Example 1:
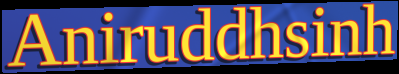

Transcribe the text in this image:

Aniruddhsinh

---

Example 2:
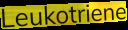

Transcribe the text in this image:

Leukotriene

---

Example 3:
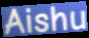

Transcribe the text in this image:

Aishu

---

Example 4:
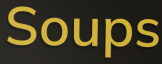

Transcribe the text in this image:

Soups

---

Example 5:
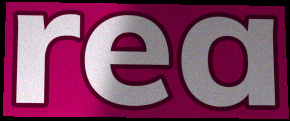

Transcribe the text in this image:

rea